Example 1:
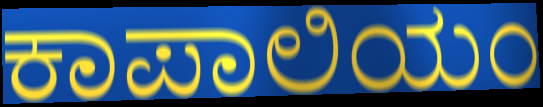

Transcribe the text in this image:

ಕಾಪಾಲಿಯಂ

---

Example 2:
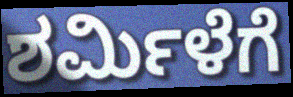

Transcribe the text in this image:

ಶರ್ಮಿಳೆಗೆ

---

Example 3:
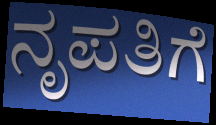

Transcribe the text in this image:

ನೃಪತಿಗೆ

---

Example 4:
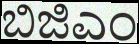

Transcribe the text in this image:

ಬಿಜಿಎಂ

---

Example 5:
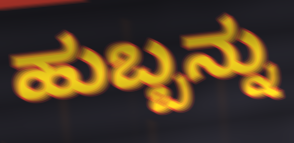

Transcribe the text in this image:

ಹುಬ್ಬನ್ನು